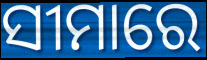
ସୀମାରେ